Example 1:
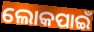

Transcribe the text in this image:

ଲୋକପାଇଁ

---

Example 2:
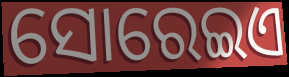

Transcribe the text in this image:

ସୋରେଇଏ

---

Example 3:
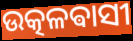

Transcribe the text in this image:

ଉତ୍କଳଵାସୀ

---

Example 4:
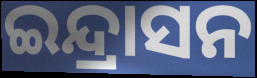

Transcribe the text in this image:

ଇନ୍ଦ୍ରାସନ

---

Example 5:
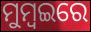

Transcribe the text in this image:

ମୁମ୍ବଇରେ